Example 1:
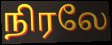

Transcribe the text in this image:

நிரலே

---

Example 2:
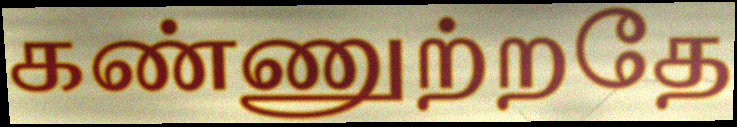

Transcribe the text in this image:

கண்ணுற்றதே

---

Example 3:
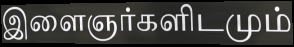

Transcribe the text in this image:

இளைஞர்களிடமும்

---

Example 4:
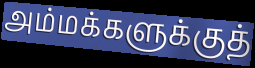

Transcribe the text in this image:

அம்மக்களுக்குத்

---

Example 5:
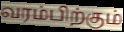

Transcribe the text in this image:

வரம்பிற்கும்